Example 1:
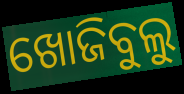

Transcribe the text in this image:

ଖୋଜିବୁଲୁ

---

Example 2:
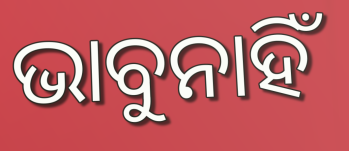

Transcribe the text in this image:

ଭାବୁନାହିଁ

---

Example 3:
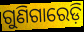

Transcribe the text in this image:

ଗୁଣିଗାରେଡ଼ି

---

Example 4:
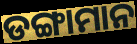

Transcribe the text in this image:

ଡଙ୍ଗାମାନ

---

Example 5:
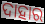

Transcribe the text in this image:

ଦାହାର